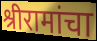
श्रीरामांचा